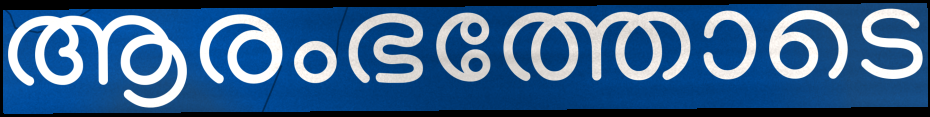
ആരംഭത്തോടെ